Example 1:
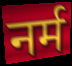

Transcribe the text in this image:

नर्म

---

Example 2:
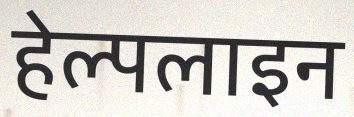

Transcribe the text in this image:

हेल्पलाइन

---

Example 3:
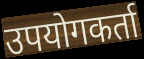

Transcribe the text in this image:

उपयोगकर्ता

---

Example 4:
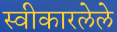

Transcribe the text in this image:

स्वीकारलेले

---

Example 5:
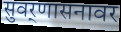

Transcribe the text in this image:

सुवर्णासनावर